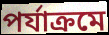
পর্যাক্রমে